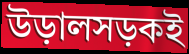
উড়ালসড়কই